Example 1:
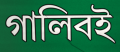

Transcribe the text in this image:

গালিবই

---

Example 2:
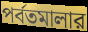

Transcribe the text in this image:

পর্বতমালার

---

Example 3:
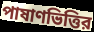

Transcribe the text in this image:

পাষাণভিত্তির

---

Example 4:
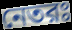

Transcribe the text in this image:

নেতরঃ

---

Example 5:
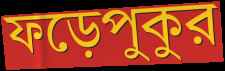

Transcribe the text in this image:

ফড়েপুকুর